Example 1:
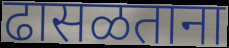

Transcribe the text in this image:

ढासळताना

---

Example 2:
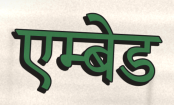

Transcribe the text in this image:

एम्बेड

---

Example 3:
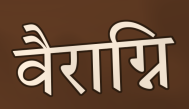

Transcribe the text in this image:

वैराग्नि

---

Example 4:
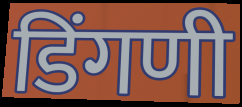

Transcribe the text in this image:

डिंगणी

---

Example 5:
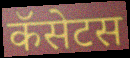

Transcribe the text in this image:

कॅसेटस